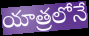
యాత్రలోనే